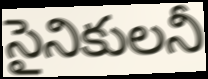
సైనికులనీ